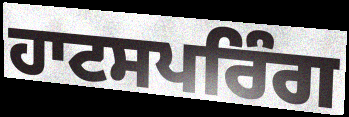
ਹਾਟਸਪਰਿੰਗ